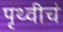
पृथ्वीचं